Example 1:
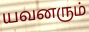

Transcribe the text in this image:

யவனரும்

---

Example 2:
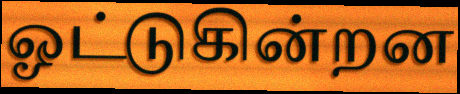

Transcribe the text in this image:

ஓட்டுகின்றன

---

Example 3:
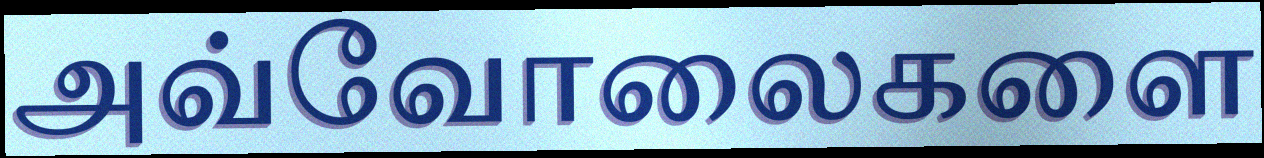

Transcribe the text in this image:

அவ்வோலைகளை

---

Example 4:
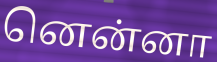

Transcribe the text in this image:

னென்னா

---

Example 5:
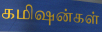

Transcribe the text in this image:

கமிஷன்கள்